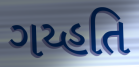
ગય્હતિ